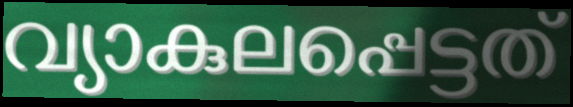
വ്യാകുലപ്പെട്ടത്